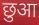
छुआ